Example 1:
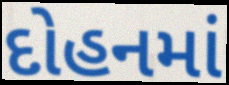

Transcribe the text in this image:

દોહનમાં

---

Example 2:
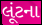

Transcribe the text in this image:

લૂંટના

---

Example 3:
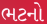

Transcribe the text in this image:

ભટનો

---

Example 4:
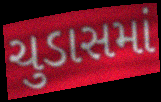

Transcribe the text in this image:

ચુડાસમાં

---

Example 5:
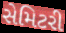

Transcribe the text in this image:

સેમિટરી